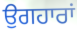
ਉਗਹਾਰਾਂ